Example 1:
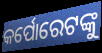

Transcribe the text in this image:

କର୍ପୋରେଟଙ୍କୁ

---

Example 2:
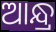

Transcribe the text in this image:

ଆନ୍ଧ୍ର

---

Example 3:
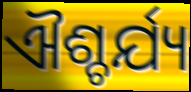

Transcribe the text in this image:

ଐଶ୍ଚର୍ଯ୍ୟ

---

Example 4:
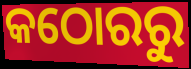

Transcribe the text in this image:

କଠୋରରୁ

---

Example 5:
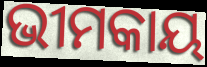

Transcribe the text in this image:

ଭୀମକାୟ